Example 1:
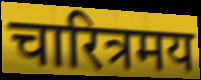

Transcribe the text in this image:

चारित्रमय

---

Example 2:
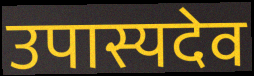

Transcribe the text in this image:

उपास्यदेव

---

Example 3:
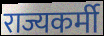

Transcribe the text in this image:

राज्यकर्मी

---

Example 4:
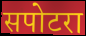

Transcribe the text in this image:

सपोटरा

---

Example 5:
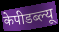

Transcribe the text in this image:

केपीडब्ल्यू